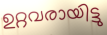
ഉറ്റവരായിട്ടു